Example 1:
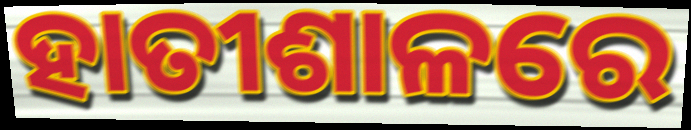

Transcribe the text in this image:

ହାତୀଶାଳରେ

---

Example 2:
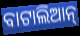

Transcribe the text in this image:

ବାଟାଲିଆନ୍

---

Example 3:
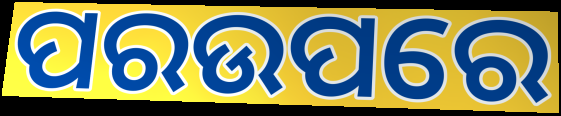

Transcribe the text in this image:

ପରଉପରେ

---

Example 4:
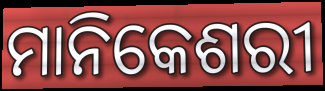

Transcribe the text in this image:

ମାନିକେଶରୀ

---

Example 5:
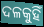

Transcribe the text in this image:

ଦଳକୁହିଁ